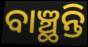
ବାଞ୍ଛନ୍ତି